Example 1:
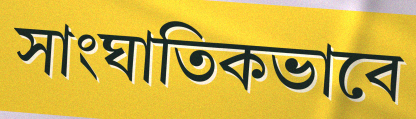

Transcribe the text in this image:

সাংঘাতিকভাবে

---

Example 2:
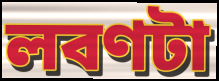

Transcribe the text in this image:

লবণটা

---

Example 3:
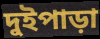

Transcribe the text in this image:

দুইপাড়া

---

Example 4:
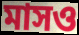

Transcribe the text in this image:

মাসও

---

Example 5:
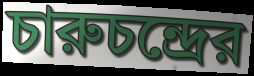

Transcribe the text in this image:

চারুচন্দ্রের